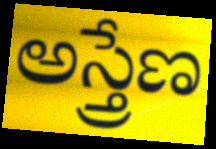
అస్త్రేణ